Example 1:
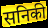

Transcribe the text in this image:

सनिकी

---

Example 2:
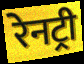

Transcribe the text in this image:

रेनट्री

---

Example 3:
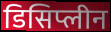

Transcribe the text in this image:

डिसिप्लीन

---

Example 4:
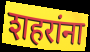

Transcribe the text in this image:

शहरांना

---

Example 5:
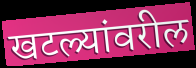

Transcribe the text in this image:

खटल्यांवरील